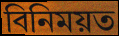
বিনিময়ত